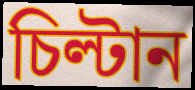
চিল্টান